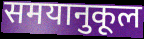
समयानुकूल